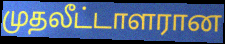
முதலீட்டாளரான